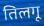
तिलगू